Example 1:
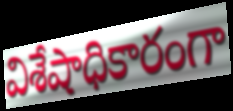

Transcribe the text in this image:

విశేషాధికారంగా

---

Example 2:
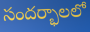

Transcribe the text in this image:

సందర్భాలలో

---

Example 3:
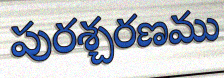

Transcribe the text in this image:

పురశ్చరణము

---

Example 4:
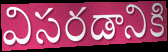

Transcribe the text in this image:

విసరడానికి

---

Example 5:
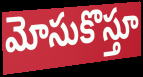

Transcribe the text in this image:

మోసుకొస్తూ